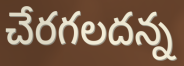
చేరగలదన్న